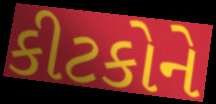
કીટકોને